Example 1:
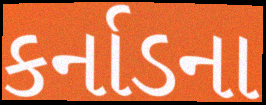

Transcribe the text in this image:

કર્નાડના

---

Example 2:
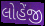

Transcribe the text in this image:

લોહેંજી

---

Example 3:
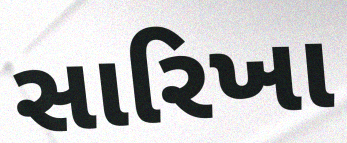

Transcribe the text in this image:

સારિખા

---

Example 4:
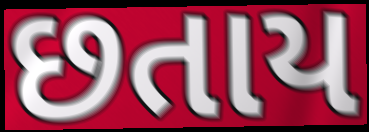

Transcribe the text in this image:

છતાય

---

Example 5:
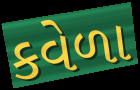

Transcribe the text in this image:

કવેળા